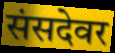
संसदेवर